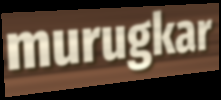
murugkar